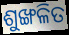
ଶୁଙ୍ଖଳିତ